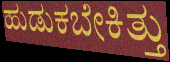
ಹುಡುಕಬೇಕಿತ್ತು